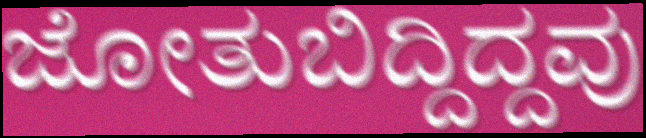
ಜೋತುಬಿದ್ದಿದ್ದವು